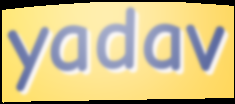
yadav